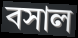
বসাল